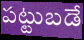
పట్టుబడే